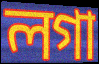
লগা